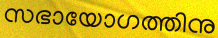
സഭായോഗത്തിനു